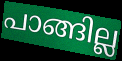
പാങ്ങില്ല